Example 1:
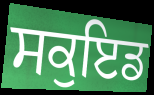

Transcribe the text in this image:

ਸਕੁਇਡ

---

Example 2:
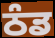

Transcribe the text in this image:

ਠੰਡ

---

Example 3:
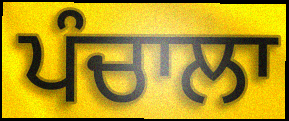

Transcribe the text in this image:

ਪੰਚਾਲਾ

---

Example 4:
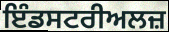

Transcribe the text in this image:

ਇੰਡਸਟਰੀਅਲਜ਼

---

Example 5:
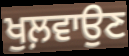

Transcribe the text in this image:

ਖੁਲ਼ਵਾਉਣ